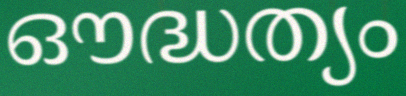
ഔദ്ധത്യം